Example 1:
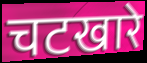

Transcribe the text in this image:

चटखारे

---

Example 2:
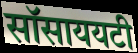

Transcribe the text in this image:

सॉसाययटी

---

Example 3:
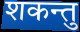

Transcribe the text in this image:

शकन्तु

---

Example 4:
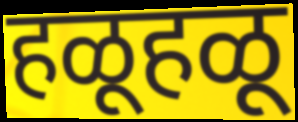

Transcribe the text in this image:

हळूहळू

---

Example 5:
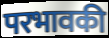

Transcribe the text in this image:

परभावकी